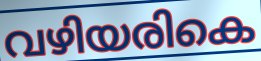
വഴിയരികെ